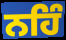
ਨਹਿੰ